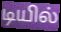
டியில்